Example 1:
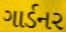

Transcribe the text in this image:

ગાર્ડનર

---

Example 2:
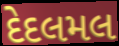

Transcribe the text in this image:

દેદલમલ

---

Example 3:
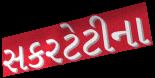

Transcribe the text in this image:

સકરટેટીના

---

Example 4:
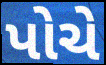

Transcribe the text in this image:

પોચે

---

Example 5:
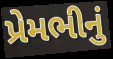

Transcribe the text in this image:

પ્રેમભીનું